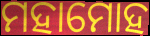
ମହାମୋହ